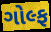
ગોલ્ફ